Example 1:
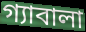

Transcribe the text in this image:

গ্যাবালা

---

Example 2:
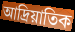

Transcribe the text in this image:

আদ্রিয়াতিক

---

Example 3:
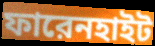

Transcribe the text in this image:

ফারেনহাইট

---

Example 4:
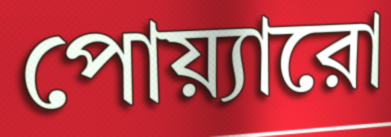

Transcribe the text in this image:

পোয়্যারো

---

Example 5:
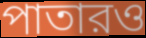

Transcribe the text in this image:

পাতারও